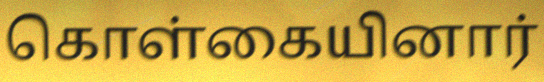
கொள்கையினார்